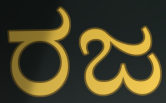
ರಜ